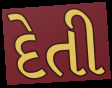
દેતી